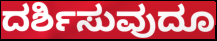
ದರ್ಶಿಸುವುದೂ